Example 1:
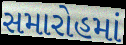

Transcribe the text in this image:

સમારોહમાં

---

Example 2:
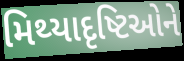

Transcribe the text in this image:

મિથ્યાદૃષ્ટિઓને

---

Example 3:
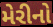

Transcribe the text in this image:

મેરીનો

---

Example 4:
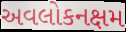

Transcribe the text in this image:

અવલોકનક્ષમ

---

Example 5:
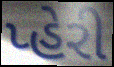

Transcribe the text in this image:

પ્હેરી